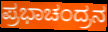
ಪ್ರಭಾಚಂದ್ರನ